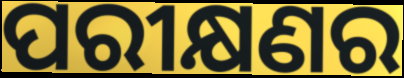
ପରୀକ୍ଷଣର